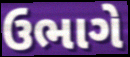
ઉભાગે